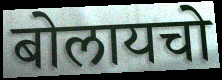
बोलायचो